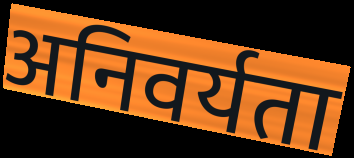
अनिवर्यता